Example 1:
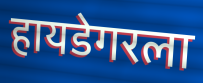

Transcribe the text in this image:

हायडेगरला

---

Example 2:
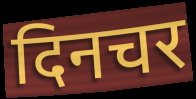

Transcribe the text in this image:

दिनचर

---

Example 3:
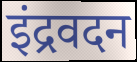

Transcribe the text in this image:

इंद्रवदन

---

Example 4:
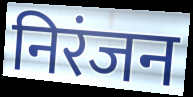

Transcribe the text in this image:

निरंजन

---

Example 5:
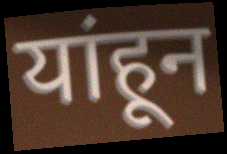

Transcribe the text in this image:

यांहून